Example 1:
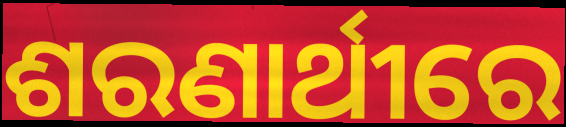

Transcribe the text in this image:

ଶରଣାର୍ଥୀରେ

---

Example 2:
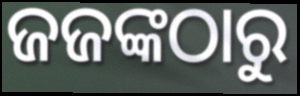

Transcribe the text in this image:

ଜଜଙ୍କଠାରୁ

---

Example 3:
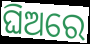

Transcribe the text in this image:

ଘିଅରେ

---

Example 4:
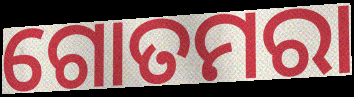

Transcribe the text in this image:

ଗୋତମରା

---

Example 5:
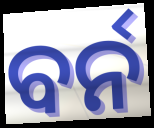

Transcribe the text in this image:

ବର୍ନ